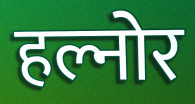
हल्नोर